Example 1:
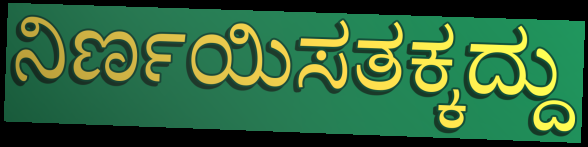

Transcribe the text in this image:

ನಿರ್ಣಯಿಸತಕ್ಕದ್ದು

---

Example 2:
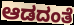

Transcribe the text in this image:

ಆಡದಂತೆ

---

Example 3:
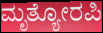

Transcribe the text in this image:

ಮೃತ್ಯೋರಪಿ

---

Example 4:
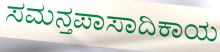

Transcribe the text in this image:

ಸಮನ್ತಪಾಸಾದಿಕಾಯ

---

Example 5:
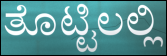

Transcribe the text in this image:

ತೊಟ್ಟಿಲಲ್ಲಿ